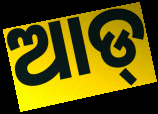
ଆଡ୍